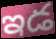
ఇడ